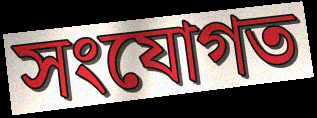
সংযোগত